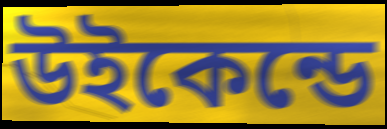
উইকেন্ডে